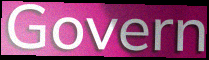
Govern